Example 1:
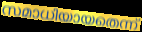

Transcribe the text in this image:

സമാധിയായതെന്ന്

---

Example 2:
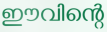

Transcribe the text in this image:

ഈവിന്റെ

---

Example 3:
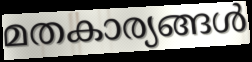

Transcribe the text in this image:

മതകാര്യങ്ങൾ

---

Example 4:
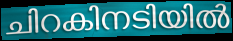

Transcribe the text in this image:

ചിറകിനടിയിൽ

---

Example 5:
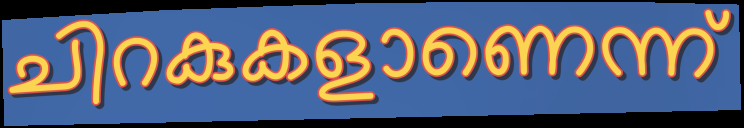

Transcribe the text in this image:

ചിറകുകളാണെന്ന്